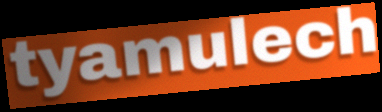
tyamulech